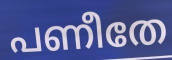
പണീതേ